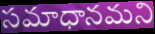
సమాధానమని